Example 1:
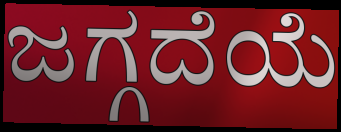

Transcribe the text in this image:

ಜಗ್ಗದೆಯೆ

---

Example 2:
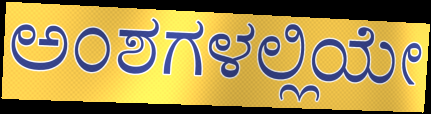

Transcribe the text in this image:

ಅಂಶಗಳಲ್ಲಿಯೇ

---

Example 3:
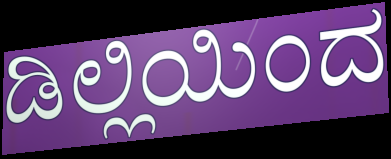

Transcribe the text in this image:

ಡಿಲ್ಲಿಯಿಂದ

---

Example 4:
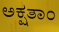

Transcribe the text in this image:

ಅಕ್ಷತಾಂ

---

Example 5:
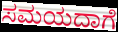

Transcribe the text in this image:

ಸಮಯದಾಗೆ